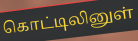
கொட்டிலினுள்